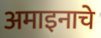
अमाइनाचे